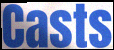
Casts